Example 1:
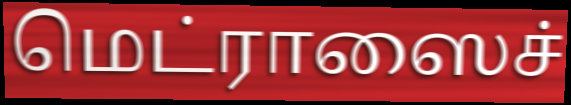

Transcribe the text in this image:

மெட்ராஸைச்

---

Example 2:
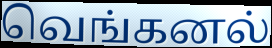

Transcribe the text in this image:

வெங்கனல்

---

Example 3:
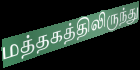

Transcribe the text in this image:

மத்தகத்திலிருந்து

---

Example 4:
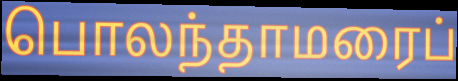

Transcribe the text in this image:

பொலந்தாமரைப்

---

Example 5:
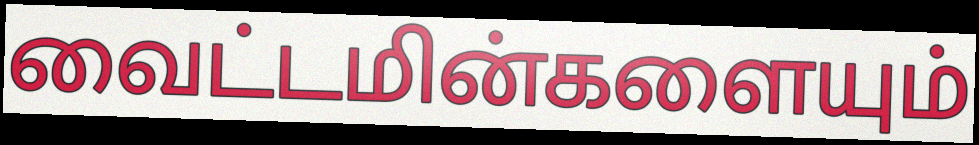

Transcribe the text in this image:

வைட்டமின்களையும்